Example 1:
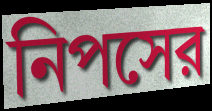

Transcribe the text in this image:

নিপসের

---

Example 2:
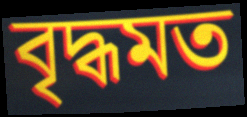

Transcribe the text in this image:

বৃদ্ধমত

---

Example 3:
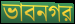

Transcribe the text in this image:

ভাবনগর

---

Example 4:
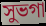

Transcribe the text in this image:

সুভগা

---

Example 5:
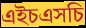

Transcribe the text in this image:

এইচএসচি